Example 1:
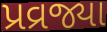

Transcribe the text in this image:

પ્રવ્રજ્યા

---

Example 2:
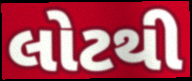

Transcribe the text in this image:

લોટથી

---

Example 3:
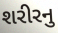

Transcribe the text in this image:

શરીરનુ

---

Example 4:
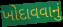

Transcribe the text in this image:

ખોદાવવાનું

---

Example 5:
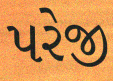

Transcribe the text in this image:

પરેજી